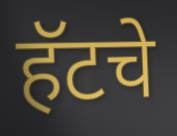
हॅटचे